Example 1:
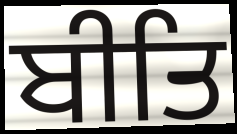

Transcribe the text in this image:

ਬੀਤਿ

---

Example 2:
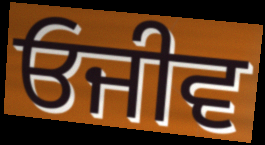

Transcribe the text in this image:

ਓਜੀਵ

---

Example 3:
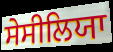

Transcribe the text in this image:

ਸੇਸੀਲਿਯਾ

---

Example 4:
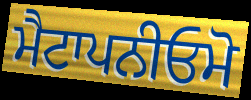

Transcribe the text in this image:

ਮੈਟਾਪਨੀਓਮੋ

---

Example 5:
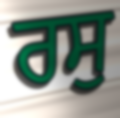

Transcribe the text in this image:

ਰਸੁ